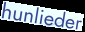
hunlieder